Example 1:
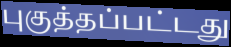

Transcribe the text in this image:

புகுத்தப்பட்டது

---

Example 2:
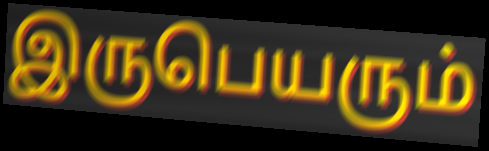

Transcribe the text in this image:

இருபெயரும்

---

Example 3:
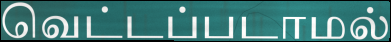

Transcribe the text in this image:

வெட்டப்படாமல்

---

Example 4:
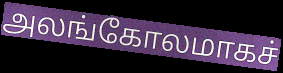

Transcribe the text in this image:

அலங்கோலமாகச்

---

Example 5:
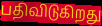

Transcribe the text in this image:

பதிவிடுகிறது